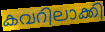
കവറിലാക്കി